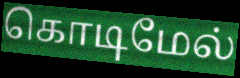
கொடிமேல்